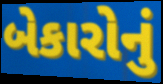
બેકારોનું